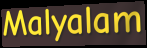
Malyalam